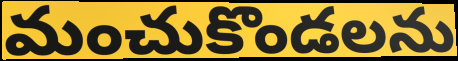
మంచుకొండలను